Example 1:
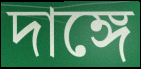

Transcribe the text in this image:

দাঙ্গে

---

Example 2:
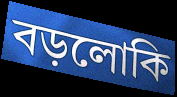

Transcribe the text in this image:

বড়লোকি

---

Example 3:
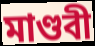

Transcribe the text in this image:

মাণ্ডবী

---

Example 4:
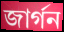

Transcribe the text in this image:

জার্গন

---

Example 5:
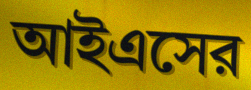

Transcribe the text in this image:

আইএসের